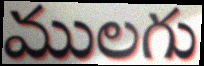
ములగు